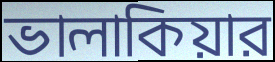
ভালাকিয়ার